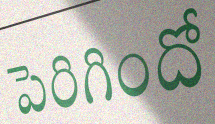
పెరిగిందో